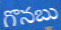
గొనబు